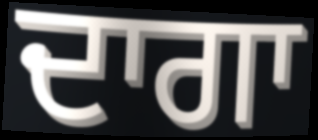
ਦਾਗਾ